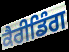
ਕੈਰੀਡਿੰਗ